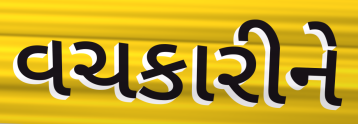
વચકારીને